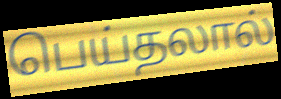
பெய்தலால்